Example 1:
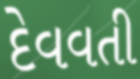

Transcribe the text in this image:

દેવવતી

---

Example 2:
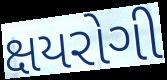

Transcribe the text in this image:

ક્ષયરોગી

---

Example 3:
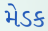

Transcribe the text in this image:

મેડક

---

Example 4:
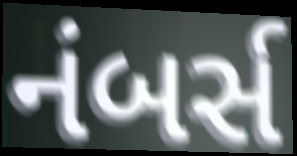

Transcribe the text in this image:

નંબર્સ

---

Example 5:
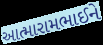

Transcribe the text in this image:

આત્મારામભાઈને